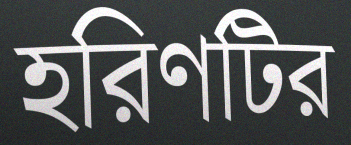
হরিণটির